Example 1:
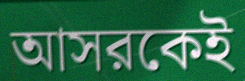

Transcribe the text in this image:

আসরকেই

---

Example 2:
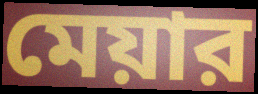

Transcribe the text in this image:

মেয়ার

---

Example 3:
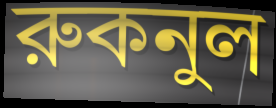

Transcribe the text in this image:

রুকনুল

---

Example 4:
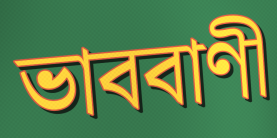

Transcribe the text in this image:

ভাববাণী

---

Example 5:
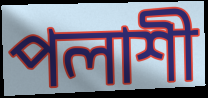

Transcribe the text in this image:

পলাশী